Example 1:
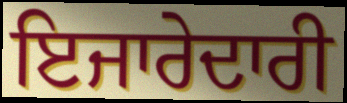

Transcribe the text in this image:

ਇਜਾਰੇਦਾਰੀ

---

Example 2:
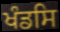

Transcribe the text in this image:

ਖੰਡਸਿ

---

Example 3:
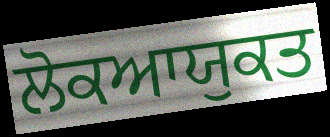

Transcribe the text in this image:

ਲੋਕਆਯੁਕਤ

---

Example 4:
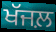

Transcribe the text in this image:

ਖੱਜਲ਼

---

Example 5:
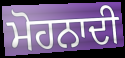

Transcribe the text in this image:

ਮੋਹਨਾਦੀ